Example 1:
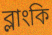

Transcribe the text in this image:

ব্লাংকি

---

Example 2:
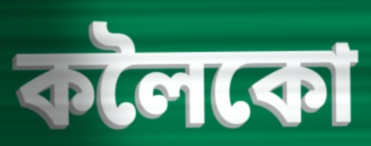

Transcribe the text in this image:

কলৈকো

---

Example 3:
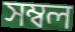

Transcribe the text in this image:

সম্বল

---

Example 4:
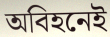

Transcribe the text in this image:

অবিহনেই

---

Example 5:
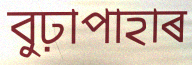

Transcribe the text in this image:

বুঢ়াপাহাৰ